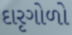
દારૃગોળો